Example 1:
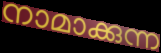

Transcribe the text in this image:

നാമാക്കുന്ന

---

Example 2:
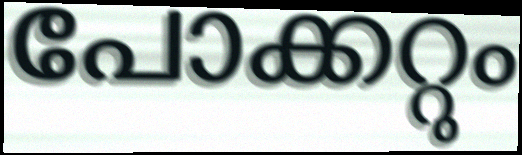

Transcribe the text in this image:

പോക്കറ്റും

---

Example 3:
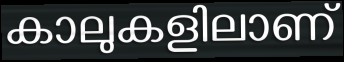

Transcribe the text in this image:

കാലുകളിലാണ്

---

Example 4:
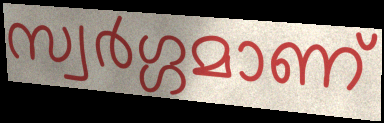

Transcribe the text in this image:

സ്വർഗ്ഗമാണ്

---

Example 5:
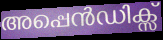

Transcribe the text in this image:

അപ്പെൻഡിക്സ്